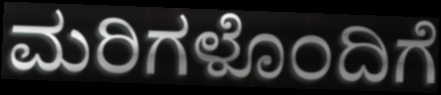
ಮರಿಗಳೊಂದಿಗೆ